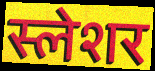
स्लेशर